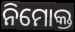
ନିମୋକ୍ତ